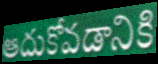
ఆదుకోవడానికి